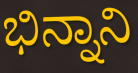
ಭಿನ್ನಾನಿ